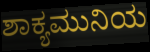
ಶಾಕ್ಯಮುನಿಯ